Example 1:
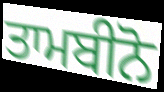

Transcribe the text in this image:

ਤਾਮਬੀਨੋ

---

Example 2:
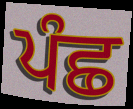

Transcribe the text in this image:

ਪੰਛ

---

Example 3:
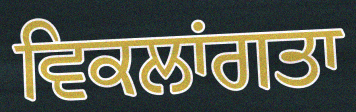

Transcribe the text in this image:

ਵਿਕਲਾਂਗਤਾ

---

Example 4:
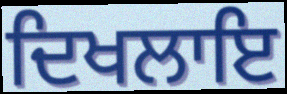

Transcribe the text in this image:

ਦਿਖਲਾਇ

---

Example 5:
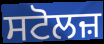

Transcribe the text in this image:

ਸਟੋਲਜ਼